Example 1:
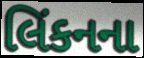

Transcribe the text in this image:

લિંકનના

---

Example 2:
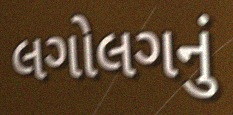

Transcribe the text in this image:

લગોલગનું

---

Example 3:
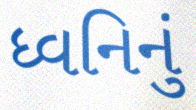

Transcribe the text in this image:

ધ્વનિનું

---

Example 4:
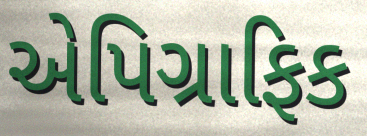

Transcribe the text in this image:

એપિગ્રાફિક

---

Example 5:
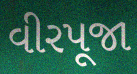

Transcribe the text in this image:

વીરપૂજા